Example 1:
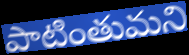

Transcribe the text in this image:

పాటింతుమని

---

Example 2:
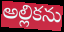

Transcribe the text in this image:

అల్లికను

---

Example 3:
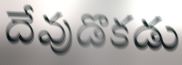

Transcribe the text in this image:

దేవుడొకడు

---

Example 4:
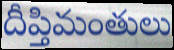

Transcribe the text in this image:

దీప్తిమంతులు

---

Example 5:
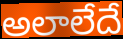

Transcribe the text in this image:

అలాలేదే